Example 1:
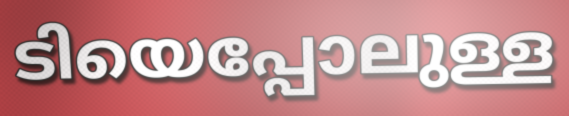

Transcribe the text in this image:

ടിയെപ്പോലുള്ള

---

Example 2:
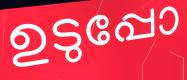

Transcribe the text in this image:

ഉടുപ്പോ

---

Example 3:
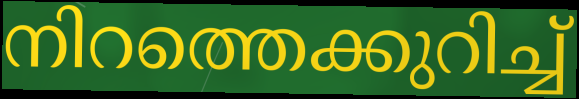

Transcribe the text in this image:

നിറത്തെക്കുറിച്ച്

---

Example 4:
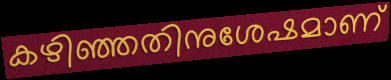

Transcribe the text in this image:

കഴിഞ്ഞതിനുശേഷമാണ്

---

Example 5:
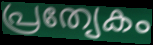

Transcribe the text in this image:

പ്രത്യേകം